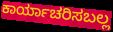
ಕಾರ್ಯಾಚರಿಸಬಲ್ಲ